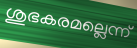
ശുഭകരമല്ലെന്ന്